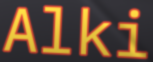
Alki